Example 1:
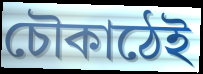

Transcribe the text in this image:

চৌকাঠেই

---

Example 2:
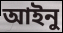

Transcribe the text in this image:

আইনু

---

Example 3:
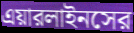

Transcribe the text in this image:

এয়ারলাইনসের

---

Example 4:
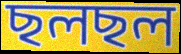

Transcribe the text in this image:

ছলছল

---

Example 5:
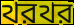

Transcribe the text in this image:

থরথর